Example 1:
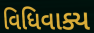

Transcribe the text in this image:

વિધિવાક્ય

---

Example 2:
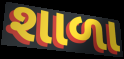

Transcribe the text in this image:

શાળા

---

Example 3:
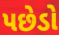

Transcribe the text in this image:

પછેડો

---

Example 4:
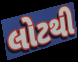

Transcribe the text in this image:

લોટથી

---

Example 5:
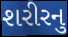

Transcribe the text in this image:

શરીરનુ